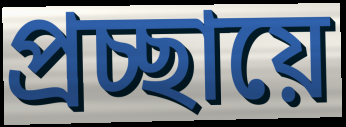
প্রচ্ছায়ে